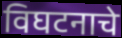
विघटनाचे